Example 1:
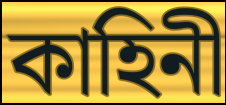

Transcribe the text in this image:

কাহিনী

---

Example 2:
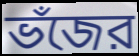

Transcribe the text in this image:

ভঁজের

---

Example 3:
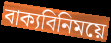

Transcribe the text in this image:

বাক্যবিনিময়ে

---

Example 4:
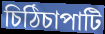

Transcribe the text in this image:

চিঠিচাপাটি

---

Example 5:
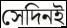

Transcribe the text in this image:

সেদিনই